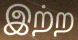
இற்ற